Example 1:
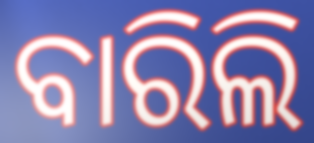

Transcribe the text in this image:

ବାରିଲି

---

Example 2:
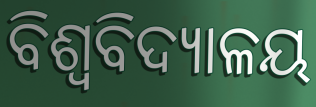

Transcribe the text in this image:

ବିଶ୍ଵବିଦ୍ୟାଳୟ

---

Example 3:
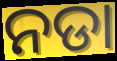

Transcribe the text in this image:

ନଡା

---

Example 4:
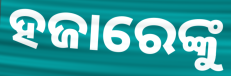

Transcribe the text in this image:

ହଜାରେଙ୍କୁ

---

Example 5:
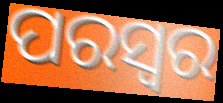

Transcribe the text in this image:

ପରସ୍ୱର